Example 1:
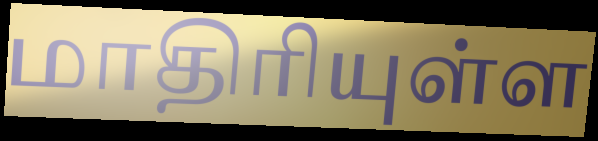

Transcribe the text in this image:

மாதிரியுள்ள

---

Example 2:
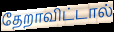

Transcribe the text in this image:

தேறாவிட்டால்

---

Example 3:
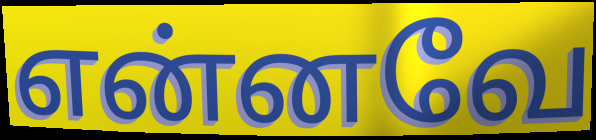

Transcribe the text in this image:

என்னவே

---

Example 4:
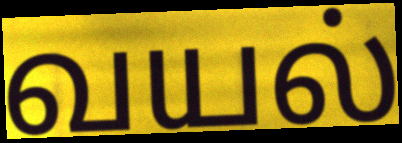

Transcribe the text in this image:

வயல்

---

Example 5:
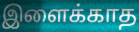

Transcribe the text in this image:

இளைக்காத